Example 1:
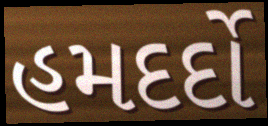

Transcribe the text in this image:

હમદર્દો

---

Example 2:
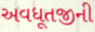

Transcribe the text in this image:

અવધૂતજીની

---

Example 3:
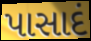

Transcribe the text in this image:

પાસાદં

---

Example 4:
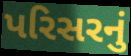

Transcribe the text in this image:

પરિસરનું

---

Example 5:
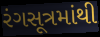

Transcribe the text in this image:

રંગસૂત્રમાંથી